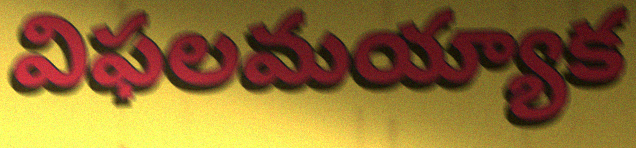
విఫలమయ్యాక